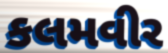
કલમવીર